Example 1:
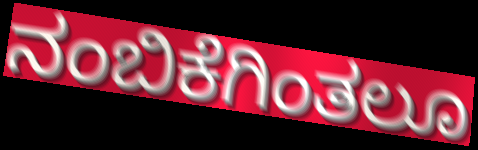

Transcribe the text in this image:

ನಂಬಿಕೆಗಿಂತಲೂ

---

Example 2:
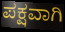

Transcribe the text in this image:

ಪಕ್ಷವಾಗಿ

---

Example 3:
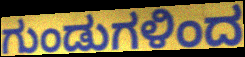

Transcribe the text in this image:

ಗುಂಡುಗಳಿಂದ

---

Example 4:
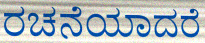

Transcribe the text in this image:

ರಚನೆಯಾದರೆ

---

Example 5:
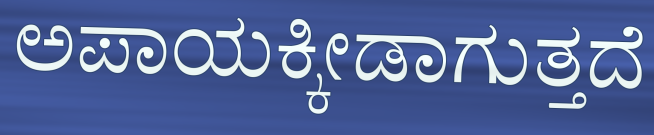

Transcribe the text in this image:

ಅಪಾಯಕ್ಕೀಡಾಗುತ್ತದೆ